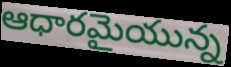
ఆధారమైయున్న